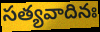
సత్యవాదినః